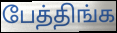
பேத்திங்க